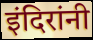
इंदिरांनी